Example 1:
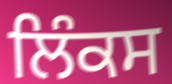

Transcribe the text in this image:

ਲਿੰਕਸ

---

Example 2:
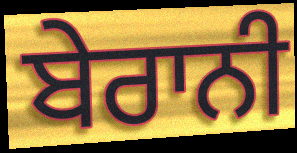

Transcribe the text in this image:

ਬੇਰਾਨੀ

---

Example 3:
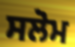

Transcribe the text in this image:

ਸਲੋਮ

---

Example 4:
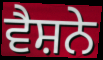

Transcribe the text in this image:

ਵੈਸ਼ਨੇ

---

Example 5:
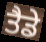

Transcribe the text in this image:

ਤੈਡੇ